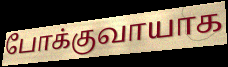
போக்குவாயாக